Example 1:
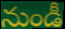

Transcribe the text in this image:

నుండీ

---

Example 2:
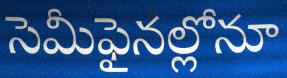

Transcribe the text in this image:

సెమీఫైనల్లోనూ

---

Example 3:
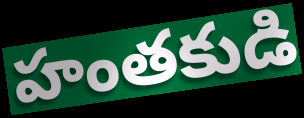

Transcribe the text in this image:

హంతకుడి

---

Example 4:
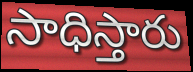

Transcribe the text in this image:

సాధిస్తారు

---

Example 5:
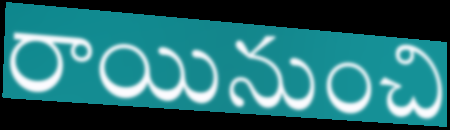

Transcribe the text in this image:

రాయినుంచి